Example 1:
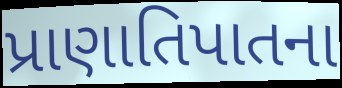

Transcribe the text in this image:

પ્રાણાતિપાતના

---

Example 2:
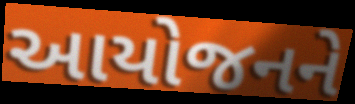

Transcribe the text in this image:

આયોજનને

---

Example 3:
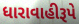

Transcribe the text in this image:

ધારાવાહીરૂપે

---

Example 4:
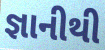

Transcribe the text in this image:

જ્ઞાનીથી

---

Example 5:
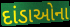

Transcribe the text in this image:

દાંડાઓના